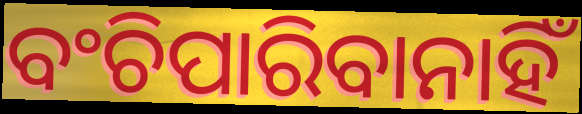
ବଂଚିପାରିବାନାହିଁ